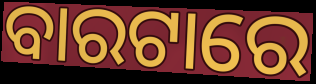
ବାରଟାରେ